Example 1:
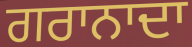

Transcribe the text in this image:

ਗਰਾਨਾਦਾ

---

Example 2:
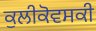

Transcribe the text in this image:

ਕੁਲੀਕੋਵਸਕੀ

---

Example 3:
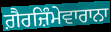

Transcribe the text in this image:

ਗ਼ੈਰਜ਼ਿੰਮੇਵਾਰਾਨਾ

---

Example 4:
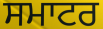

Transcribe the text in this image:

ਸਮਾਟਰ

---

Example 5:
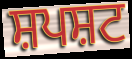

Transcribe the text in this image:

ਸ਼ਪਸ਼ਟ